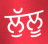
ਲੁੱਲੂ